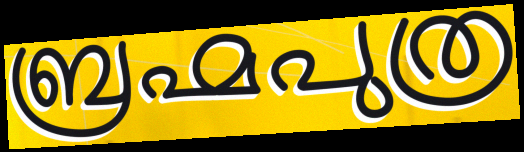
ബ്രഹ്മപുത്ര